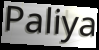
Paliya